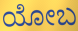
ಯೋಬ